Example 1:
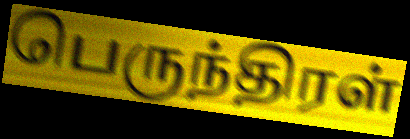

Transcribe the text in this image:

பெருந்திரள்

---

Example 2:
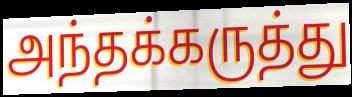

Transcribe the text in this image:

அந்தக்கருத்து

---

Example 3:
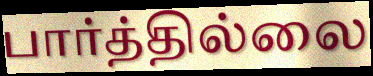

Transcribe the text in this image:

பார்த்தில்லை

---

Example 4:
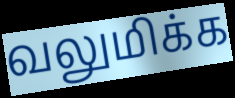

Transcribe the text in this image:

வலுமிக்க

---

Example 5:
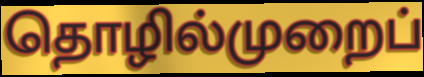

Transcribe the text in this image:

தொழில்முறைப்